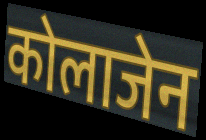
कोलाजेन